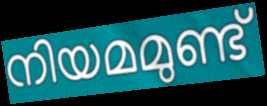
നിയമമുണ്ട്